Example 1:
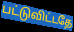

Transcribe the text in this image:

பட்டுவிட்டதே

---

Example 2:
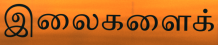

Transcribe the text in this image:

இலைகளைக்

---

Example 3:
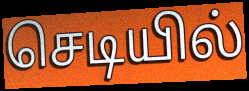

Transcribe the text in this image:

செடியில்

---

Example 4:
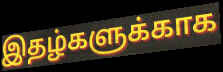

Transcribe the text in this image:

இதழ்களுக்காக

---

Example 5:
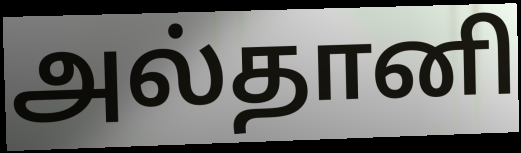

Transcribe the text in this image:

அல்தானி